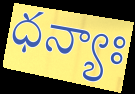
ధన్యాః